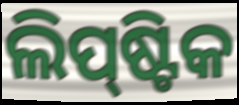
ଲିପ୍‌ଷ୍ଟିକ